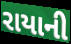
રાયાની